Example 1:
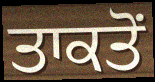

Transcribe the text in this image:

ਤਾਕਤੋਂ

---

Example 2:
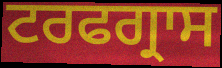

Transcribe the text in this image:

ਟਰਫਗ੍ਰਾਸ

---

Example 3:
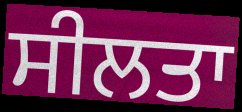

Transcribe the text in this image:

ਸੀਲਤਾ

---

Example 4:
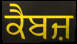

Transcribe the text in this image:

ਕੈਬਜ਼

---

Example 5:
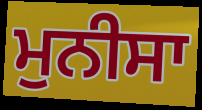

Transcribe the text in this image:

ਮੁਨੀਸਾ